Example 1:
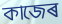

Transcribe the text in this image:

কাজেৰ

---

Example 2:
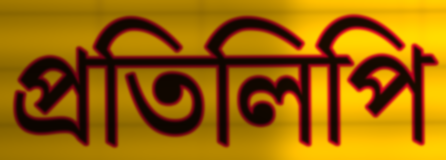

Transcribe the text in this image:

প্ৰতিলিপি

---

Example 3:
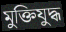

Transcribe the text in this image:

মুক্তিযুদ্ধ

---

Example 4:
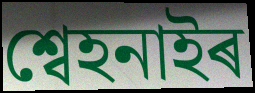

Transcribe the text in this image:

শ্বেহনাইৰ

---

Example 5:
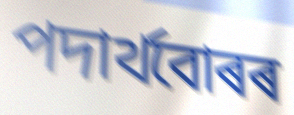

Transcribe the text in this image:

পদাৰ্থবোৰৰ